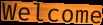
Welcome